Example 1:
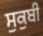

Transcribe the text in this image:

ਸੁਕੁਬੀ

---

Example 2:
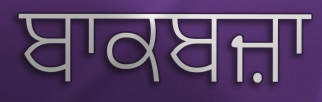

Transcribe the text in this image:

ਬਾਕਬਜ਼ਾ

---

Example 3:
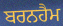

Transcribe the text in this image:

ਬਰਨਹੈਮ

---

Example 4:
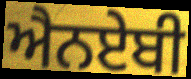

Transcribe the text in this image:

ਐਨਏਬੀ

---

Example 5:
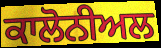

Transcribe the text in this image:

ਕਾਲੋਨੀਅਲ